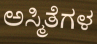
ಅಸ್ಮಿತೆಗಳ